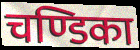
चण्डिका